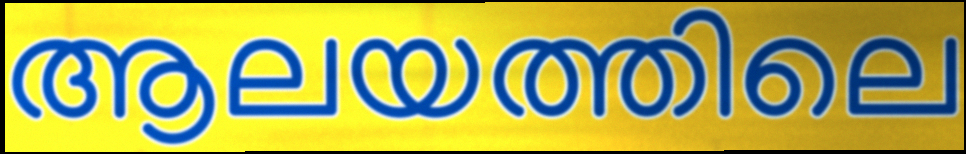
ആലയത്തിലെ